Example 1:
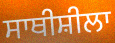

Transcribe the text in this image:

ਸਾਥੀਸ਼ੀਲਾ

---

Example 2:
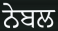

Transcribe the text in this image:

ਨੇਬਲ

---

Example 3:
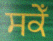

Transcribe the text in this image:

ਸਕੇਁ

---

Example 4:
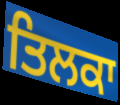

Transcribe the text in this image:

ਤਿਲਕਾ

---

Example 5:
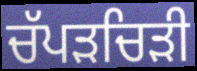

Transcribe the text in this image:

ਚੱਪੜਚਿੜੀ